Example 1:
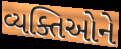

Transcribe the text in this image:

વ્યક્તિઓને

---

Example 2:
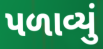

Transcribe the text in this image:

પળાવ્યું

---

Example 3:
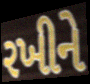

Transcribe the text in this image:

રખીને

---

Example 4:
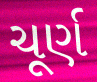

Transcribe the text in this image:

ચૂર્ણ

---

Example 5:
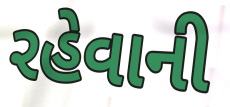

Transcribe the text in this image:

રહેવાની